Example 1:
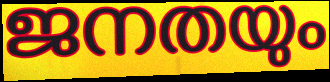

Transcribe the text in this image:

ജനതയും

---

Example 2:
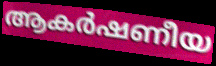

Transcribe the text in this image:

ആകർഷണീയ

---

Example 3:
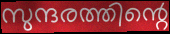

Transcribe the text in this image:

സുന്ദരത്തിന്റെ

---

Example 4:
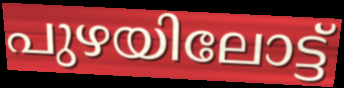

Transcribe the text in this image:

പുഴയിലോട്ട്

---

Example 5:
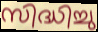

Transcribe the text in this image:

സിദ്ധിച്ചു